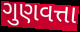
ગુણવત્તા